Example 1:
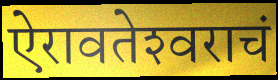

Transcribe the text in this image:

ऐरावतेश्वराचं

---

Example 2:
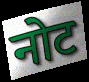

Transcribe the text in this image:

नोट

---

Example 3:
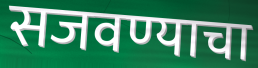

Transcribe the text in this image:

सजवण्याचा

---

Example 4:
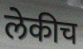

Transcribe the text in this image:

लेकीच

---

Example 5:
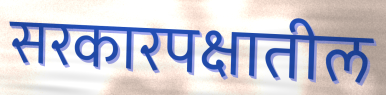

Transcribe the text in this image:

सरकारपक्षातील